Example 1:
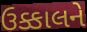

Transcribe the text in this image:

ઉક્કાલને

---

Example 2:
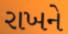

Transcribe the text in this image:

રાખને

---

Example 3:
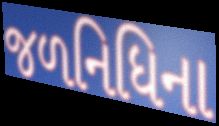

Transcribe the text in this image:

જળનિધિના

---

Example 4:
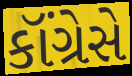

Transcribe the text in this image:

કૉંગ્રેસે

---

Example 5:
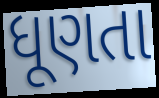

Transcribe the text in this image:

ધૂણતા